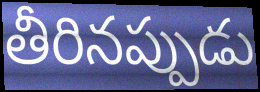
తీరినప్పుడు